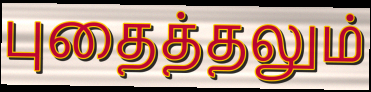
புதைத்தலும்